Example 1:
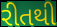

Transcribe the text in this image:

રીતથી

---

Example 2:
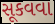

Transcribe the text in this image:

સૂકવવા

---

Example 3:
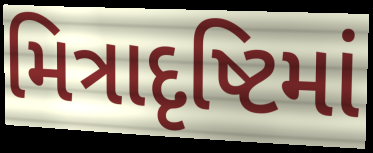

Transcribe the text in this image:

મિત્રાદૃષ્ટિમાં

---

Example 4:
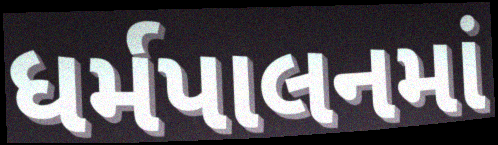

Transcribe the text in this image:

ધર્મપાલનમાં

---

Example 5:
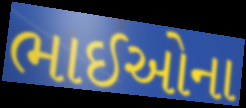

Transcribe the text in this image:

ભાઈઓના